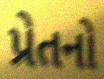
પ્રેતનો